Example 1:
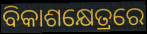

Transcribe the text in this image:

ବିକାଶକ୍ଷେତ୍ରରେ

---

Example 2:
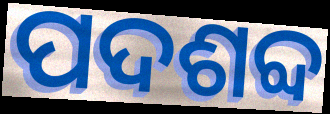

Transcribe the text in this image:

ପଦଶବ୍ଦ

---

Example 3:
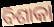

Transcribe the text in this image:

ବିଶାକା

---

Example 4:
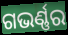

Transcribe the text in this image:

ଗଭର୍ଣ୍ଣର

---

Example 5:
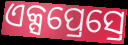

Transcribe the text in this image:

ଏକ୍ସପ୍ରେସ୍ରେ